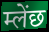
म्लेंछ